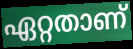
ഏറ്റതാണ്